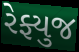
રેફ્યુજ